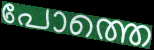
പോത്തെ